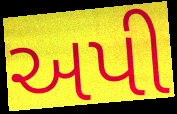
અપી